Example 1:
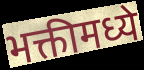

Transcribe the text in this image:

भक्तीमध्ये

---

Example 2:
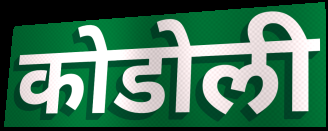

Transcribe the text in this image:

कोडोली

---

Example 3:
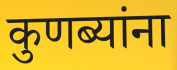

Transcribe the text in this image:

कुणब्यांना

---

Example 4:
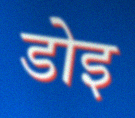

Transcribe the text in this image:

डोइ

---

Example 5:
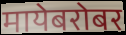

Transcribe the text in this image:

मायेबरोबर